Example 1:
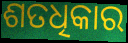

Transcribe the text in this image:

ଶତଧିକାର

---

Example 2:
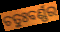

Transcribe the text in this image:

ଚତୁଃବର୍ଣ୍ଣର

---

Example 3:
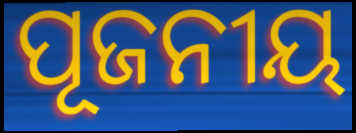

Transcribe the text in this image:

ପୂଜନୀୟ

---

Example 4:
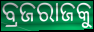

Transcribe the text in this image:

ବ୍ରଜରାଜକୁ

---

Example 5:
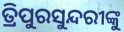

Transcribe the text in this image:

ତ୍ରିପୁରସୁନ୍ଦରୀଙ୍କୁ